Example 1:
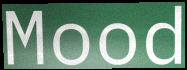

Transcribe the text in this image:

Mood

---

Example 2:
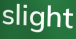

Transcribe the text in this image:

slight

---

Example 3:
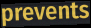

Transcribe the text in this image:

prevents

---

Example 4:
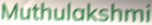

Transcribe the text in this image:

Muthulakshmi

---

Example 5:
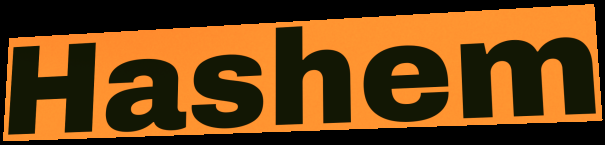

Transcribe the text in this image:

Hashem